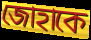
জোহাকে